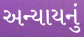
અન્યાયનું